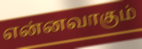
என்னவாகும்